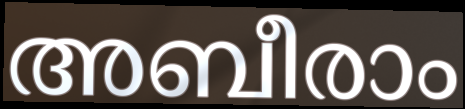
അബീരാം